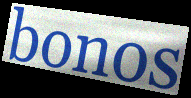
bonos